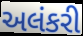
અલંકરી